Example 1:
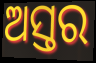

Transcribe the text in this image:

ଅସ୍ତର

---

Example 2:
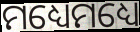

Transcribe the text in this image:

ମଧ୍ୟେମଧ୍ୟେ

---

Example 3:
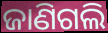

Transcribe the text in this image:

ଜାଣିଗଲି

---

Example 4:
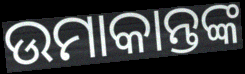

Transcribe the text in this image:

ଉମାକାନ୍ତଙ୍କ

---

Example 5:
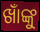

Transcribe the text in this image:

ଖାଁଙ୍କୁ